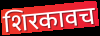
शिरकावच